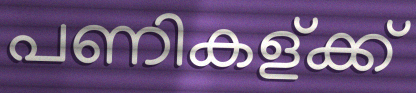
പണികള്ക്ക്